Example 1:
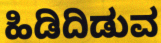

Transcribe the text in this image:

ಹಿಡಿದಿಡುವ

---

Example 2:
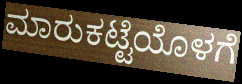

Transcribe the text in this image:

ಮಾರುಕಟ್ಟೆಯೊಳಗೆ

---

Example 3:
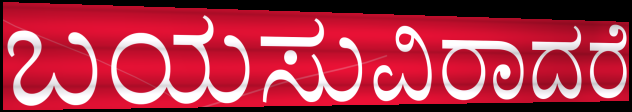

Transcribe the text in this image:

ಬಯಸುವಿರಾದರೆ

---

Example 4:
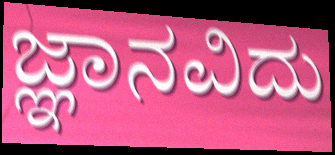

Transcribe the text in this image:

ಜ್ಞಾನವಿದು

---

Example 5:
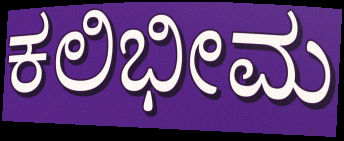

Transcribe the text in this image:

ಕಲಿಭೀಮ